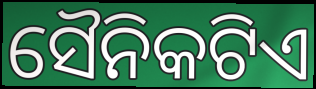
ସୈନିକଟିଏ